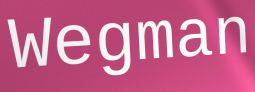
Wegman